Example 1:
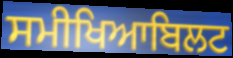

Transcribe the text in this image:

ਸਮੀਖਿਆਬਿਲਟ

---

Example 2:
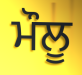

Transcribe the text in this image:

ਮੌਲੂ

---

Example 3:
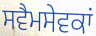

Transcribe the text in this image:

ਸਵੈਮਸੇਵਕਾਂ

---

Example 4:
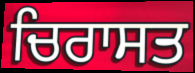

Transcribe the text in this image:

ਚਿਰਾਸਤ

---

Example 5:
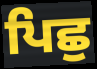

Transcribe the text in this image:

ਪਿਛੁ